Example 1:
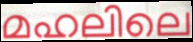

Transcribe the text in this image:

മഹലിലെ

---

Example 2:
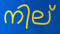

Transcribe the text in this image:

നില്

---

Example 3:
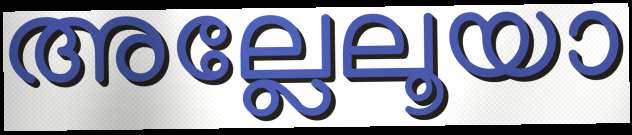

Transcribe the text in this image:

അല്ലേലൂയാ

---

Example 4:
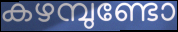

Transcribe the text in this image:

കഴമ്പുണ്ടോ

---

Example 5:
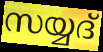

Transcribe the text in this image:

സയ്യദ്